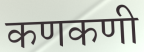
कणकणी